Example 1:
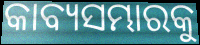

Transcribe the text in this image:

କାବ୍ୟସମ୍ଭାରକୁ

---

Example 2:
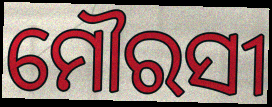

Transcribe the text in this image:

ମୌରସୀ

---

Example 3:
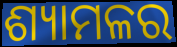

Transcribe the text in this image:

ଶ୍ୟାମଳର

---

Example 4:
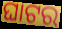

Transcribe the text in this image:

ଘାଟର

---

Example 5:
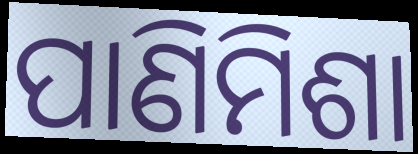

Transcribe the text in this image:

ପାଣିମିଶା